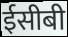
ईसीबी